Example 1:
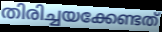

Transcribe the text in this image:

തിരിച്ചയക്കേണ്ടത്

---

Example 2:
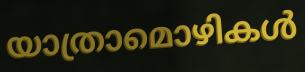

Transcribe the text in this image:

യാത്രാമൊഴികൾ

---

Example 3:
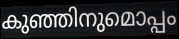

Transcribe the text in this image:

കുഞ്ഞിനുമൊപ്പം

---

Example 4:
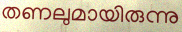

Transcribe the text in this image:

തണലുമായിരുന്നു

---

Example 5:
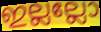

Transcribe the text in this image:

ഇല്ലല്ലോ